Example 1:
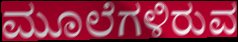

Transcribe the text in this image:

ಮೂಲೆಗಳಿರುವ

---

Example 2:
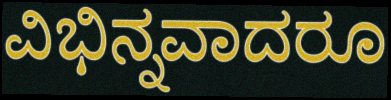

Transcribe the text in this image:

ವಿಭಿನ್ನವಾದರೂ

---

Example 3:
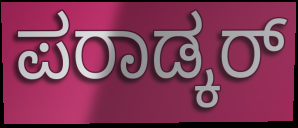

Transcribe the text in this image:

ಪರಾಡ್ಕರ್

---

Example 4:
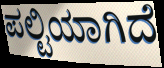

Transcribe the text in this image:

ಪಲ್ಟಿಯಾಗಿದೆ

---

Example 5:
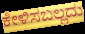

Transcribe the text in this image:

ಕೇಳಿಸಬಲ್ಲದು